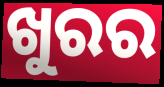
ଖୁରର